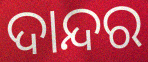
ଦାନ୍ଦର